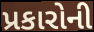
પ્રકારોની